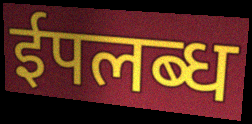
ईपलब्ध